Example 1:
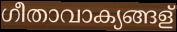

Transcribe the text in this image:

ഗീതാവാക്യങ്ങള്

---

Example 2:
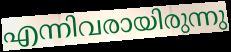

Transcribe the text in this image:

എന്നിവരായിരുന്നു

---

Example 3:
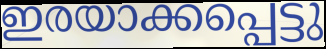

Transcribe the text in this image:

ഇരയാക്കപ്പെട്ടു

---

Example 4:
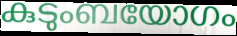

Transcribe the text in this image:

കുടുംബയോഗം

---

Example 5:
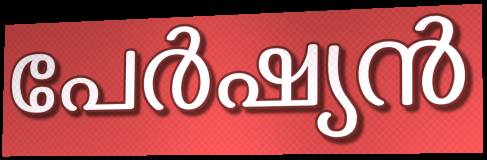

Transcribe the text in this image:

പേർഷ്യൻ